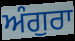
ਅੰਗੁਰਾ